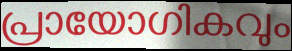
പ്രായോഗികവും